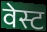
वेस्ट